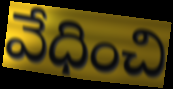
వేధించి